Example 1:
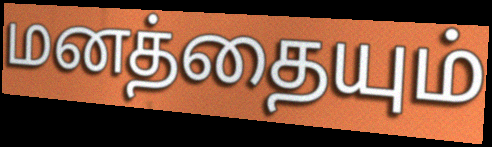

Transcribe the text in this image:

மனத்தையும்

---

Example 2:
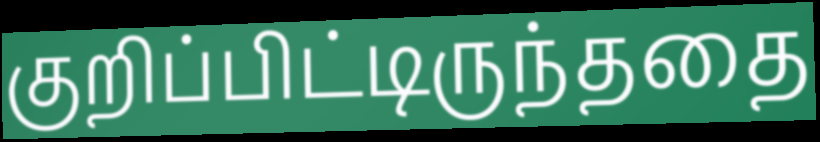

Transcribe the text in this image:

குறிப்பிட்டிருந்ததை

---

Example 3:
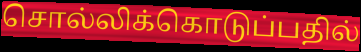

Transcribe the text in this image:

சொல்லிக்கொடுப்பதில்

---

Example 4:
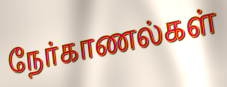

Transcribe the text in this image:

நேர்காணல்கள்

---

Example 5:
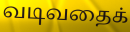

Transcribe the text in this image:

வடிவதைக்